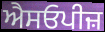
ਐਸਓਪੀਜ਼